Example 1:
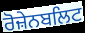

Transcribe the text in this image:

ਰੋਜ਼ੇਨਬਲਿਟ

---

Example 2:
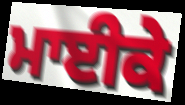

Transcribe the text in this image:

ਮਾਈਕੇ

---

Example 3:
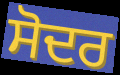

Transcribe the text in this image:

ਸੋਦਰ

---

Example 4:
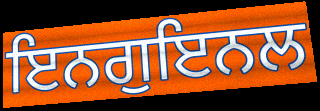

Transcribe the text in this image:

ਇਨਗੁਇਨਲ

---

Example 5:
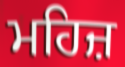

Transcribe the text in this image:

ਮਹਿਜ਼